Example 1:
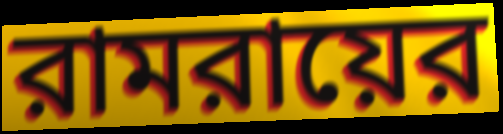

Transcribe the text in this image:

রামরায়ের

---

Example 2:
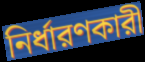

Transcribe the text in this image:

নির্ধারণকারী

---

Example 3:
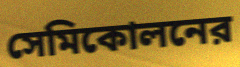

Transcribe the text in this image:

সেমিকোলনের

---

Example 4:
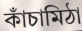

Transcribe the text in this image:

কাঁচামিঠা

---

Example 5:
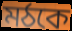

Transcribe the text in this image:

মঠকে